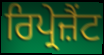
ਰਿਪ੍ਰੇਜ਼ੈਂਟ